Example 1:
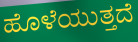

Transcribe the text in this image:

ಹೊಳೆಯುತ್ತದೆ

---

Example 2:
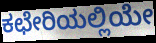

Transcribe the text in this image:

ಕಛೇರಿಯಲ್ಲಿಯೇ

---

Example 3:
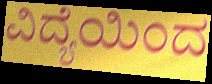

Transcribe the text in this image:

ವಿದ್ಯೆಯಿಂದ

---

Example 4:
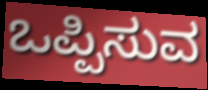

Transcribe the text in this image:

ಒಪ್ಪಿಸುವ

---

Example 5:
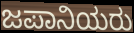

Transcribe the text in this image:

ಜಪಾನಿಯರು